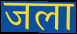
जला